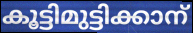
കൂട്ടിമുട്ടിക്കാന്